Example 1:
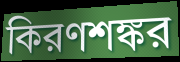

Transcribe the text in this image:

কিরণশঙ্কর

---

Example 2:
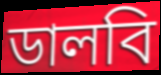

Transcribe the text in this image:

ডালবি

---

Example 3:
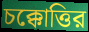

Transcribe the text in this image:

চক্কোত্তির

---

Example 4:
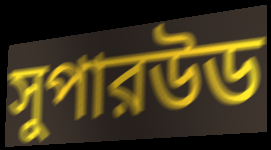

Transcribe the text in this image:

সুপারউড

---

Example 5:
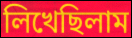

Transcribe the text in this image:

লিখেছিলাম